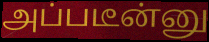
அப்படீன்னு